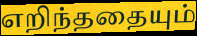
எறிந்ததையும்